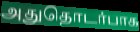
அதுதொடர்பாக